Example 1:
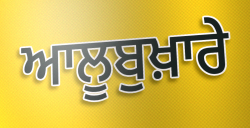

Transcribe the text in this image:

ਆਲੂਬੁਖ਼ਾਰੇ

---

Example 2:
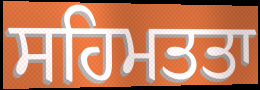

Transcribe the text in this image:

ਸਹਿਮਤਤਾ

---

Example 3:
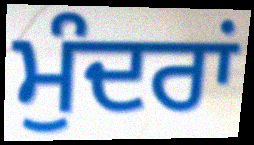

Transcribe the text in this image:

ਮੁੰਦਰਾਂ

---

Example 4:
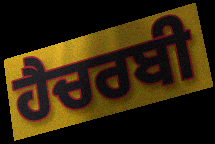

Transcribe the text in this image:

ਹੈਚਰਬੀ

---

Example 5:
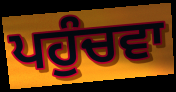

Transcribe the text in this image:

ਪਹੁੰਚਵਾ